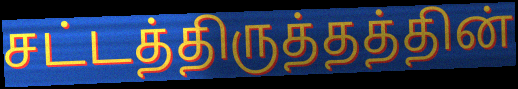
சட்டத்திருத்தத்தின்